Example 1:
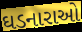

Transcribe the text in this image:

ઘડનારાઓ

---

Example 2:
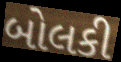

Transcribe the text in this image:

બોલકી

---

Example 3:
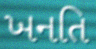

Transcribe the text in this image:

ખનતિ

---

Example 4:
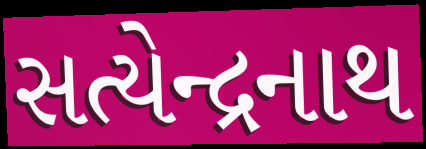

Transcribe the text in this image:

સત્યેન્દ્રનાથ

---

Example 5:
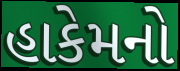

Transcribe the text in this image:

હાકેમનો